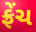
ફ્રેંચ